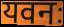
यवनः